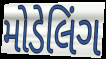
મોડેલિંગ